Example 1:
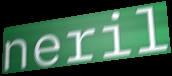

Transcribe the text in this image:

neril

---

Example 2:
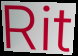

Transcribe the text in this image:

Rit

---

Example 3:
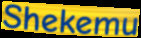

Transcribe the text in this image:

Shekemu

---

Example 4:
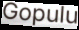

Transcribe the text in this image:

Gopulu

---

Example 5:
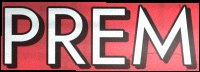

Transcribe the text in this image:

PREM